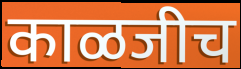
काळजीच